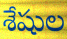
శేషుల